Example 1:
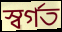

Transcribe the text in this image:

স্বর্গত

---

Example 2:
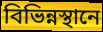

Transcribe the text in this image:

বিভিন্নস্থানে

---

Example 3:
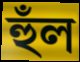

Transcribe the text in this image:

হুঁল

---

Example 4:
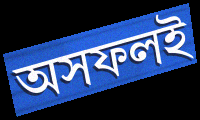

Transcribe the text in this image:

অসফলই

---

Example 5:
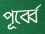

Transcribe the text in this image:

পূর্ব্বে